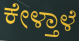
ಕೇಳ್ತಾಳೆ